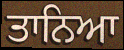
ਤਾਨਿਆ